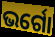
ଭର୍ଗୋ